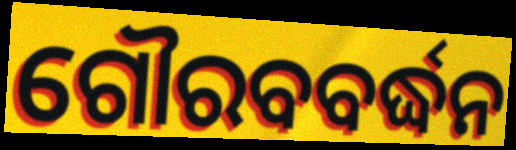
ଗୌରବବର୍ଦ୍ଧନ